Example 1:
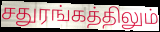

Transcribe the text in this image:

சதுரங்கத்திலும்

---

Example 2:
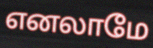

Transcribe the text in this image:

எனலாமே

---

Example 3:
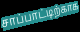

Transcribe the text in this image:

சாப்பாட்டிற்காக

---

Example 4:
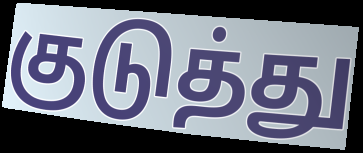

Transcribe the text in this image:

குடுத்து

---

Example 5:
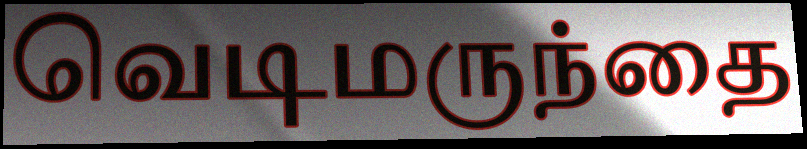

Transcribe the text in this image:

வெடிமருந்தை